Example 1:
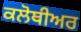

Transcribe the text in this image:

ਕਲੋਥੀਅਰ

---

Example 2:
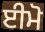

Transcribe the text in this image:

ਈਮੋ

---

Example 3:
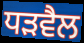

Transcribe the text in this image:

ਧੜਵੈਲ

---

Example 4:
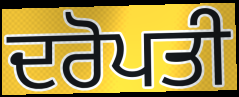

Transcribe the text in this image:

ਦਰੋਪਤੀ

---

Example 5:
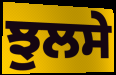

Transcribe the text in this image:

ਝੁਲਸੇ